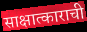
साक्षात्काराची